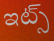
ఇట్స్